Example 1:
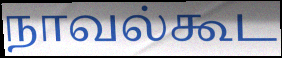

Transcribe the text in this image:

நாவல்கூட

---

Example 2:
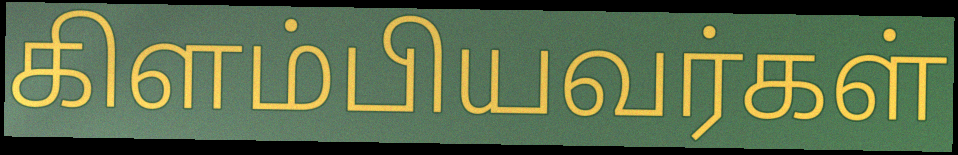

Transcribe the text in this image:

கிளம்பியவர்கள்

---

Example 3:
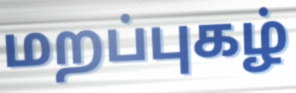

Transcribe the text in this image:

மறப்புகழ்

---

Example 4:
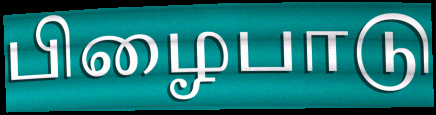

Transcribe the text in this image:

பிழைபாடு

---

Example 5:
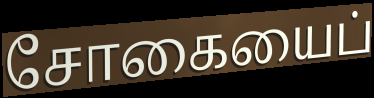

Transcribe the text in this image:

சோகையைப்